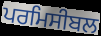
ਪਰਮਿਸੀਬਲ